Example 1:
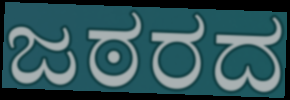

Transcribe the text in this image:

ಜಠರದ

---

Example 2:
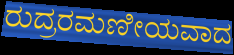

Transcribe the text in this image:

ರುದ್ರರಮಣೀಯವಾದ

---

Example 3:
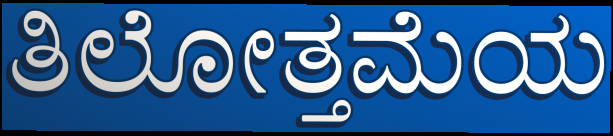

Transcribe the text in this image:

ತಿಲೋತ್ತಮೆಯ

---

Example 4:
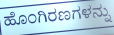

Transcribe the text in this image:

ಹೊಂಗಿರಣಗಳನ್ನು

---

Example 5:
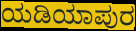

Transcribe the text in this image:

ಯಡಿಯಾಪುರ